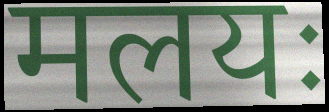
मलयः